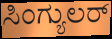
ಸಿಂಗ್ಯುಲರ್